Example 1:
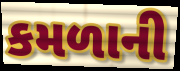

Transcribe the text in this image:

કમળાની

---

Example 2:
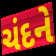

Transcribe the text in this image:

ચંદને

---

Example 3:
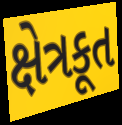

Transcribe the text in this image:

ક્ષેત્રકૂત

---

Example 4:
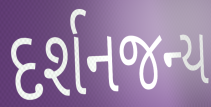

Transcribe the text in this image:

દર્શનજન્ય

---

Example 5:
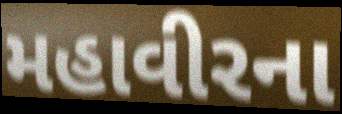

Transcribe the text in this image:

મહાવીરના